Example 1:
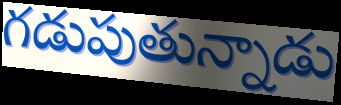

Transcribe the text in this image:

గడుపుతున్నాడు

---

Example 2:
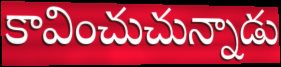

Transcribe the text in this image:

కావించుచున్నాడు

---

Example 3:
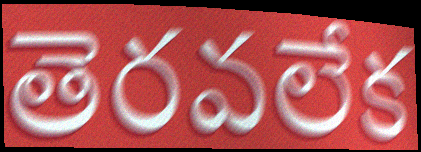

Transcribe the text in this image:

తెరవలేక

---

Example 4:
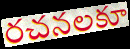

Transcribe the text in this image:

రచనలకూ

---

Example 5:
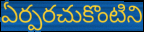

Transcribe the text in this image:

ఏర్పరచుకొంటిని